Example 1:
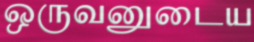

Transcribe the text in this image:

ஒருவனுடைய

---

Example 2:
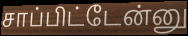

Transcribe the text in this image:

சாப்பிட்டேன்னு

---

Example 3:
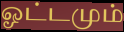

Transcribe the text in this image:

ஓட்டமும்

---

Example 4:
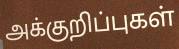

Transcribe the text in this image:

அக்குறிப்புகள்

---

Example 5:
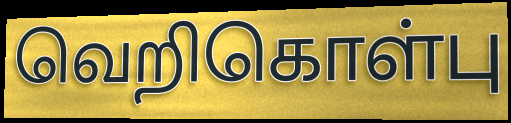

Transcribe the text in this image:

வெறிகொள்பு